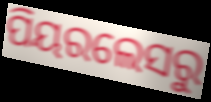
ପିୟରଲେସରୁ